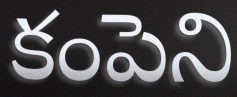
కంపెని